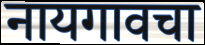
नायगावचा